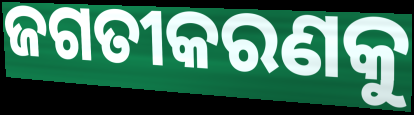
ଜଗତୀକରଣକୁ